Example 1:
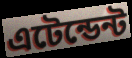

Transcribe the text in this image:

এটেন্ডেন্ট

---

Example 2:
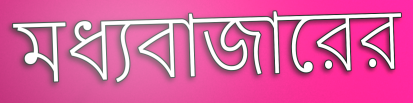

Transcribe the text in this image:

মধ্যবাজারের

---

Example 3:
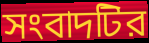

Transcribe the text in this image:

সংবাদটির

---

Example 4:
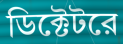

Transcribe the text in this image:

ডিক্টেটরে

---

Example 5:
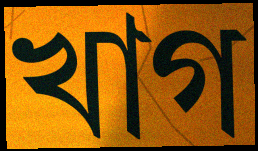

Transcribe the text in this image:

খাগ